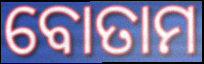
ବୋତାମ